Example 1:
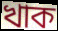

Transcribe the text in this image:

খাক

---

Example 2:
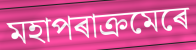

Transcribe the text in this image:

মহাপৰাক্ৰমেৰে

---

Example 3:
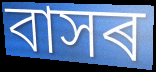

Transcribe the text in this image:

বাসৰ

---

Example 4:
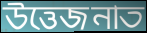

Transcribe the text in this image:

উত্তেজনাত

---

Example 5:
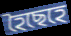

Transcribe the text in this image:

হৈছেহে